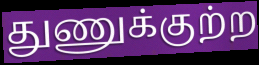
துணுக்குற்ற